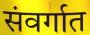
संवर्गात